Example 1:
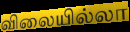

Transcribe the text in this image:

விலையில்லா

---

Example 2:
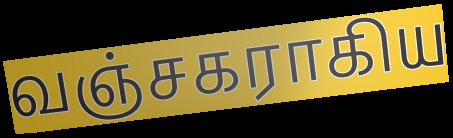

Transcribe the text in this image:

வஞ்சகராகிய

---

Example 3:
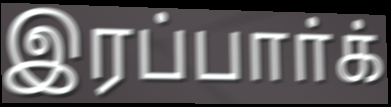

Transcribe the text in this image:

இரப்பார்க்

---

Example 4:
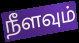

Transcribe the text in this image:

நீளவும்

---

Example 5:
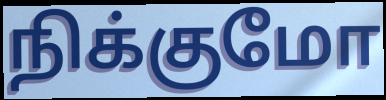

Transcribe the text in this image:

நிக்குமோ